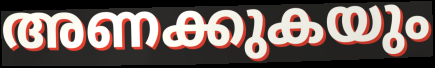
അണക്കുകയും